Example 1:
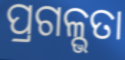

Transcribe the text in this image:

ପ୍ରଗଳ୍ଭତା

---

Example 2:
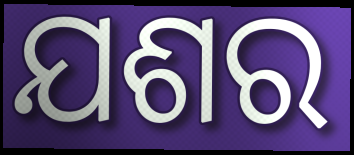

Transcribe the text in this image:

ଯଶର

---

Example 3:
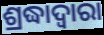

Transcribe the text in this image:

ଶ୍ରଦ୍ଧାଦ୍ୱାରା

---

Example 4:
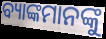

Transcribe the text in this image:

ବ୍ୟାଙ୍କମାନଙ୍କୁ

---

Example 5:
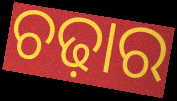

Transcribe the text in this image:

ଚଢ଼ାର